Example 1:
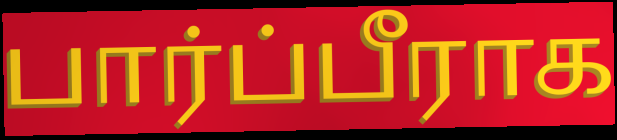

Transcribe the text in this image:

பார்ப்பீராக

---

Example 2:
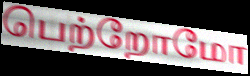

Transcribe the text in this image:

பெற்றோமோ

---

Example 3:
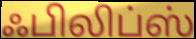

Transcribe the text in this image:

ஃபிலிப்ஸ்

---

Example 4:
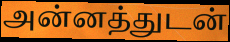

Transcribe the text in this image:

அன்னத்துடன்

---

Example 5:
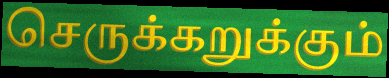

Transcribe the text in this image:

செருக்கறுக்கும்